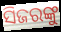
ସିଜରଙ୍କୁ